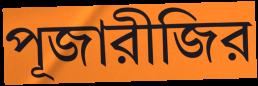
পূজারীজির